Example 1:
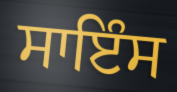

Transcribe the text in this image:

ਸਾਇੰਸ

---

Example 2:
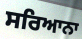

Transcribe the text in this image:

ਸਰਿਆਨਾ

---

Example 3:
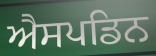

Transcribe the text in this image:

ਐਸਪਡਿਨ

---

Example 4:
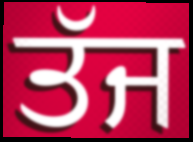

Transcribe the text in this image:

ਤੱਜ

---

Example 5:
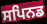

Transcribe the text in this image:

ਸਪਿਨਡ